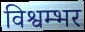
विश्वम्भर